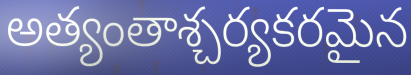
అత్యంతాశ్చర్యకరమైన